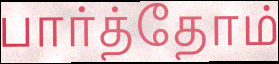
பார்த்தோம்